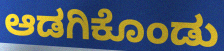
ಆಡಗಿಕೊಂಡು